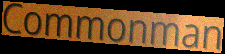
Commonman